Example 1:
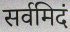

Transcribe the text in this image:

सर्वमिदं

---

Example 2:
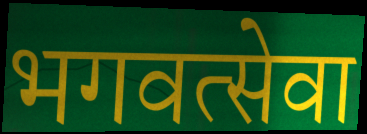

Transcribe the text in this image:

भगवत्सेवा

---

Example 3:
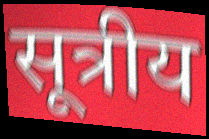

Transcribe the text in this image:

सूत्रीय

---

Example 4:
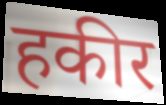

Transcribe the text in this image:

हकीर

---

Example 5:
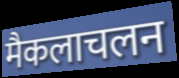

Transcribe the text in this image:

मैकलाचलन